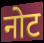
नोट